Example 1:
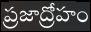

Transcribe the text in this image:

ప్రజాద్రోహం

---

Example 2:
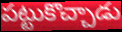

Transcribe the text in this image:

పట్టుకొచ్చాడు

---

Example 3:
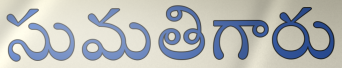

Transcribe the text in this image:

సుమతిగారు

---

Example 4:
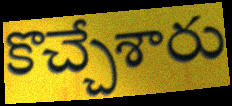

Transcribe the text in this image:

కొచ్చేశారు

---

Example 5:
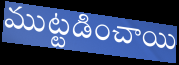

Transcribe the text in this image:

ముట్టడించాయి